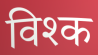
विश्क